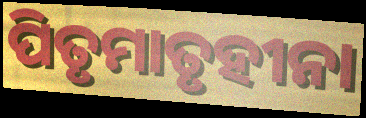
ପିତୃମାତୃହୀନା